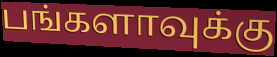
பங்களாவுக்கு